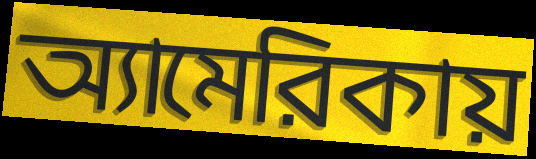
অ্যামেরিকায়